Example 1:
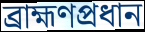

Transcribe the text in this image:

ব্রাহ্মণপ্রধান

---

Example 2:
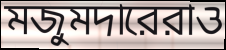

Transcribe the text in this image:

মজুমদারেরাও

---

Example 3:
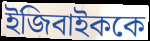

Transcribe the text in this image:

ইজিবাইককে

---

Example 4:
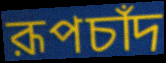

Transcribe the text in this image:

রূপচাঁদ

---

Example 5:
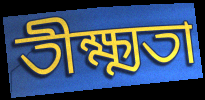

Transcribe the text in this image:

তীক্ষ্মতা